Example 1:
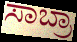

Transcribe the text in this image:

ಸಾಬ್ರಾ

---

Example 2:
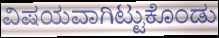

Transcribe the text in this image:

ವಿಷಯವಾಗಿಟ್ಟುಕೊಂಡು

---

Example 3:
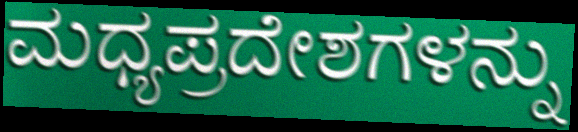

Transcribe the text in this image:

ಮಧ್ಯಪ್ರದೇಶಗಳನ್ನು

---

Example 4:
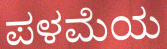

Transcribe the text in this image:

ಪಳಮೆಯ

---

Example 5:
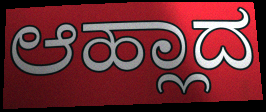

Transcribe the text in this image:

ಆಹ್ಲಾದ